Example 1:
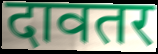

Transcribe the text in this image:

दावतर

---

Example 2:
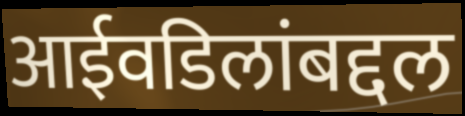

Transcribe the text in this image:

आईवडिलांबद्दल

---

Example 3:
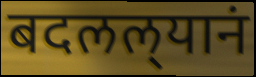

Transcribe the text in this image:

बदलल्यानं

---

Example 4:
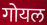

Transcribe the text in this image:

गोयल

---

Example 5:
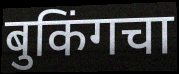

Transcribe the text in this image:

बुकिंगचा